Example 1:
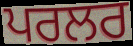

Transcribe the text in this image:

ਪਰਲਰ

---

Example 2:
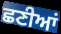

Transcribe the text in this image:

ਛਣੀਆਂ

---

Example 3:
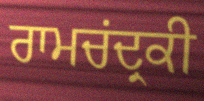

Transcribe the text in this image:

ਰਾਮਚਂਦ੍ਰਕੀ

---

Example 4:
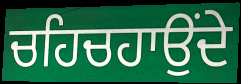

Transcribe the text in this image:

ਚਹਿਚਹਾਉਂਦੇ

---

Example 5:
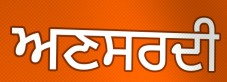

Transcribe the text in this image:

ਅਣਸਰਦੀ